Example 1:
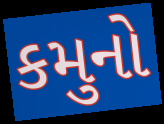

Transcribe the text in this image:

કમુનો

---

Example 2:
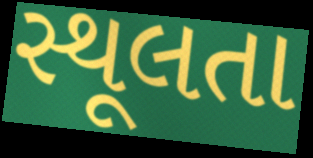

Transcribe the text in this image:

સ્થૂલતા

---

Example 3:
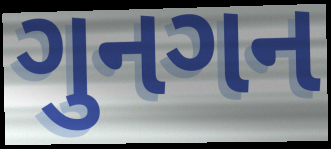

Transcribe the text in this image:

ગુનગન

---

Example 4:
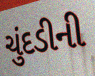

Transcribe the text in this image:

ચુંદડીની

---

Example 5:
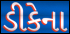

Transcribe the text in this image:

ડીકેના